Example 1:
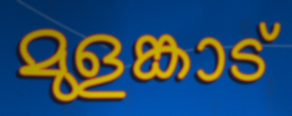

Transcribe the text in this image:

മുളങ്കാട്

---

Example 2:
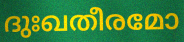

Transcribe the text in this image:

ദുഃഖതീരമോ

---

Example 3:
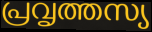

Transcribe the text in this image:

പ്രവൃത്തസ്യ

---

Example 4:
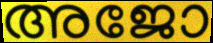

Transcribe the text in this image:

അജോ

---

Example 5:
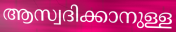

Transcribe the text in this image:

ആസ്വദിക്കാനുള്ള